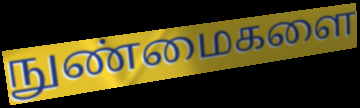
நுண்மைகளை